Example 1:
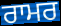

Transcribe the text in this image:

ਰਾਮਰ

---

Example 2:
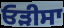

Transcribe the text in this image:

ਓੜੀਸਾ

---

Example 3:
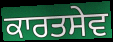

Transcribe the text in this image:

ਕਾਰਤਸੇਵ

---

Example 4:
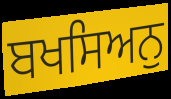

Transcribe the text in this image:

ਬਖਸਿਅਨੁ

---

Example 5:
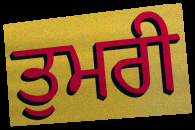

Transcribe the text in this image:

ਤੁਮਰੀ